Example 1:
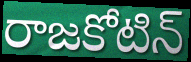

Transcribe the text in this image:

రాజకోటిన్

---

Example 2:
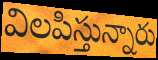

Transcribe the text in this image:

విలపిస్తున్నారు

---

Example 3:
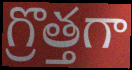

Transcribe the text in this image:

గ్రొత్తగా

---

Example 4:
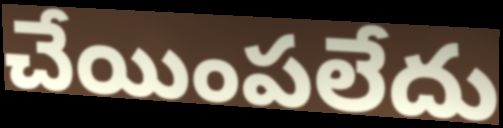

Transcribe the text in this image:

చేయింపలేదు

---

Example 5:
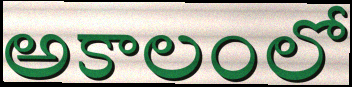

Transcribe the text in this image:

అకాలంలో